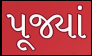
પૂજ્યાં